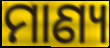
ମାଣ୍ୟ